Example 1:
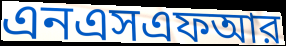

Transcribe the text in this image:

এনএসএফআর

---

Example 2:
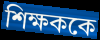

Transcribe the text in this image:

শিক্ষককে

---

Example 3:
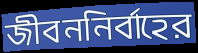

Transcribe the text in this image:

জীবননির্বাহের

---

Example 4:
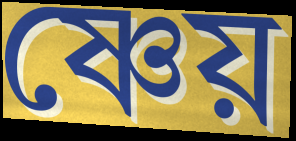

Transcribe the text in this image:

ষ্ণেয়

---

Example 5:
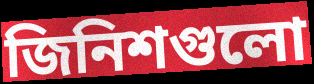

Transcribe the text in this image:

জিনিশগুলো